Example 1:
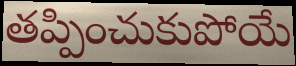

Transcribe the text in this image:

తప్పించుకుపోయే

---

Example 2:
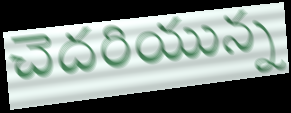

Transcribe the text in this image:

చెదరియున్న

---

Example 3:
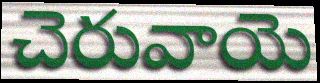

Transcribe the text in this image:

చెరువాయె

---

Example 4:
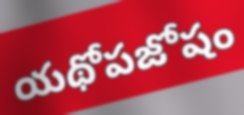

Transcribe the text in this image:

యథోపజోషం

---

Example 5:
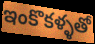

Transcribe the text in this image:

ఇంకొకళ్ళతో